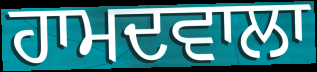
ਹਾਮਦਵਾਲਾ